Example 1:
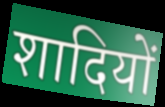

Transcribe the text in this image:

शादियों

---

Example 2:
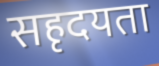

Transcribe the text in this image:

सहृदयता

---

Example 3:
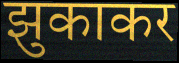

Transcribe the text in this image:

झुकाकर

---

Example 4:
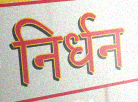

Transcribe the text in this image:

निर्धन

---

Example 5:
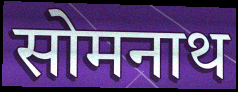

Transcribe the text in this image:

सोमनाथ